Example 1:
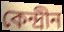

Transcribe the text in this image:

কেন্দ্রীন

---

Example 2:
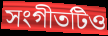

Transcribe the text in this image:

সংগীতটিও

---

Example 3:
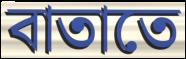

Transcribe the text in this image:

বাতাতে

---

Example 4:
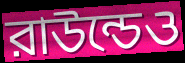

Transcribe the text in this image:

রাউন্ডেও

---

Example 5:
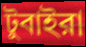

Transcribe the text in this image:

টুবাইরা